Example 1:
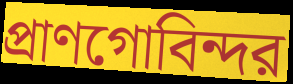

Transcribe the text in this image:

প্রাণগোবিন্দর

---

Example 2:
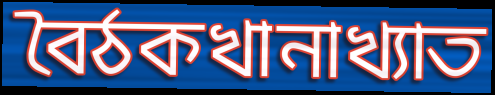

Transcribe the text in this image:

বৈঠকখানাখ্যাত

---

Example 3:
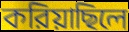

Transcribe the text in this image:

করিয়াছিলে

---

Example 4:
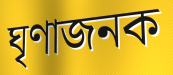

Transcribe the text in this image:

ঘৃণাজনক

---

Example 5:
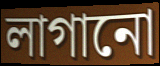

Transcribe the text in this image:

লাগানো